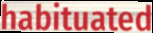
habituated